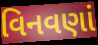
વિનવણાં